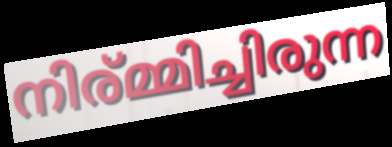
നിര്മ്മിച്ചിരുന്ന